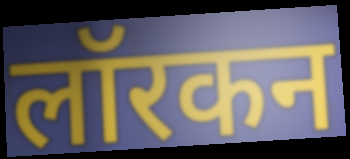
लॉरकन